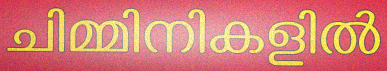
ചിമ്മിനികളിൽ